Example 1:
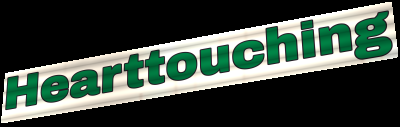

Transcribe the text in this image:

Hearttouching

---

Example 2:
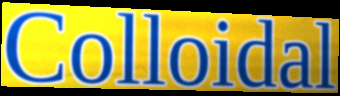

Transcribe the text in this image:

Colloidal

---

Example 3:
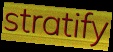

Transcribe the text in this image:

stratify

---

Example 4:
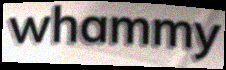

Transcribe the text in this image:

whammy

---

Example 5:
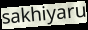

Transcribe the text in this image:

sakhiyaru